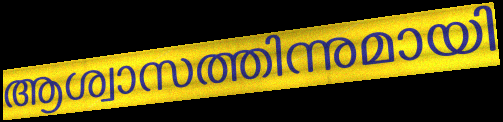
ആശ്വാസത്തിന്നുമായി